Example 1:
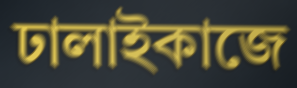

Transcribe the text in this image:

ঢালাইকাজে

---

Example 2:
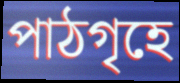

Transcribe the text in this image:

পাঠগৃহে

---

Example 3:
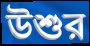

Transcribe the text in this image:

উশুর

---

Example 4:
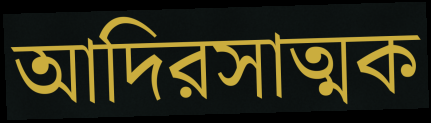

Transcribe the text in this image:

আদিরসাত্মক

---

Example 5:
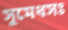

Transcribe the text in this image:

সুমেধসঃ